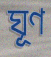
ঘূণ